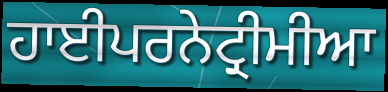
ਹਾਈਪਰਨੇਟ੍ਰੀਮੀਆ